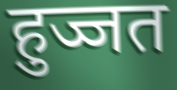
हुज्जत